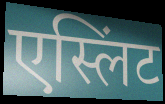
एस्लिंट